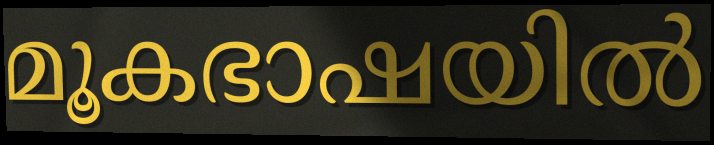
മൂകഭാഷയിൽ